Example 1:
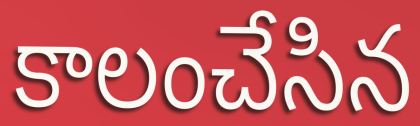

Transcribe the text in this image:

కాలంచేసిన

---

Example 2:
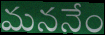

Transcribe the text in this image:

మననేం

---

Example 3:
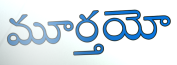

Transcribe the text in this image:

మూర్తయో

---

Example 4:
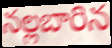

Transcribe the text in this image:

నల్లబారిన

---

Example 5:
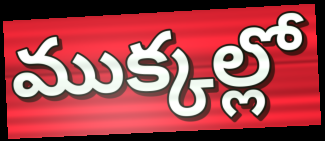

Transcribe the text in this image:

ముక్కల్లో